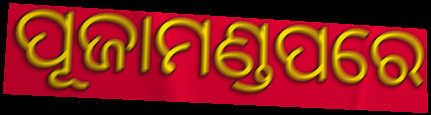
ପୂଜାମଣ୍ଡପରେ